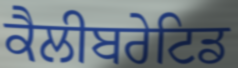
ਕੈਲੀਬਰੇਟਿਡ